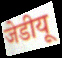
जेडीयू